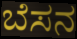
ಬೆಸನ